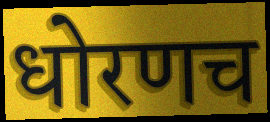
धोरणच